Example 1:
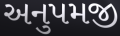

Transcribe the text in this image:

અનુપમજી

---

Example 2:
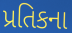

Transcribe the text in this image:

પ્રતિકના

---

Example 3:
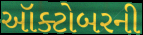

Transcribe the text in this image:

ઑક્ટોબરની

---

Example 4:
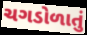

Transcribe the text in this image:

ચગડોળાતું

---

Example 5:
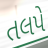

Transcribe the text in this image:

તલપે